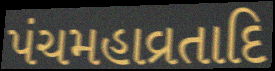
પંચમહાવ્રતાદિ